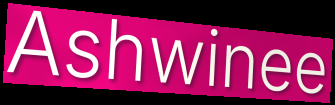
Ashwinee